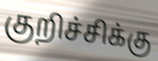
குறிச்சிக்கு